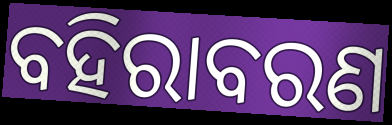
ବହିରାବରଣ